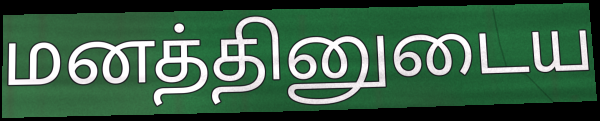
மனத்தினுடைய